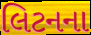
લિટનના